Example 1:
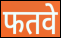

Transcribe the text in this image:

फतवे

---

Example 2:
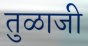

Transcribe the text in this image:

तुळाजी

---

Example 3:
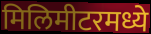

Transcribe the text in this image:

मिलिमीटरमध्ये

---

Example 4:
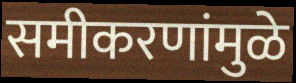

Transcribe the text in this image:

समीकरणांमुळे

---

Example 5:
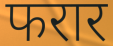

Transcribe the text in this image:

फरार